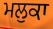
ਮਲੁਕਾ